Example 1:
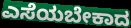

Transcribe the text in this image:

ಎಸೆಯಬೇಕಾದ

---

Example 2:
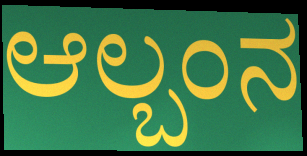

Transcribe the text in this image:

ಆಲ್ಬಂನ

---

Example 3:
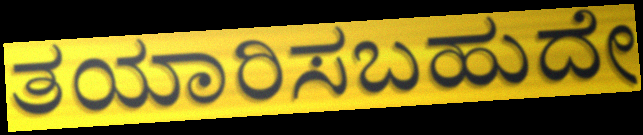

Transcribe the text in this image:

ತಯಾರಿಸಬಹುದೇ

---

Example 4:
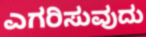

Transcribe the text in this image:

ಎಗರಿಸುವುದು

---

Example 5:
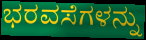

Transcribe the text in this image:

ಭರವಸೆಗಳನ್ನು